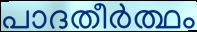
പാദതീർത്ഥം